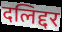
दलिद्दर